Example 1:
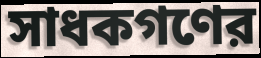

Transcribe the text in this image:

সাধকগণের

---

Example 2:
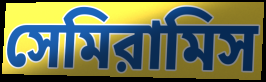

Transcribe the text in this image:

সেমিরামিস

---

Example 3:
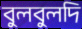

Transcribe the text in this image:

বুলবুলদি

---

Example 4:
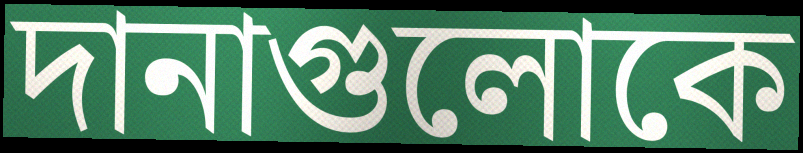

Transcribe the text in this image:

দানাগুলোকে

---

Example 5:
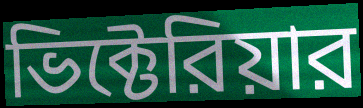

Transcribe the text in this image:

ভিক্টেরিয়ার